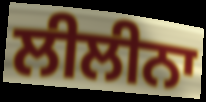
ਲੀਲੀਨਾ